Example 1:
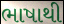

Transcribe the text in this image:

ભાષાથી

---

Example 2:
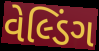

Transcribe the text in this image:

વેલ્ડિંગ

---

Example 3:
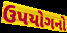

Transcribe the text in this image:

ઉપયોગનો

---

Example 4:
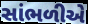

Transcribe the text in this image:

સાંભળીએ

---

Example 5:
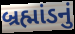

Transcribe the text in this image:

બ્રહ્માંડનું